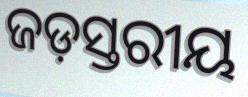
ଜଡ଼ସ୍ତରୀୟ